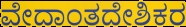
ವೇದಾಂತದೇಶಿಕರ